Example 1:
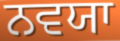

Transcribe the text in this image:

ਨਵਯਾ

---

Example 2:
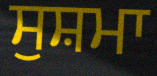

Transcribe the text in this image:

ਸੁਸ਼ਮਾ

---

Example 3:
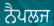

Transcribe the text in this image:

ਨੈਪਲਜ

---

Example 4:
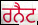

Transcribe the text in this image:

ਰਨੈਟ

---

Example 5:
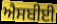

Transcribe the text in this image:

ਐਸਬੀਈ